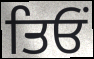
ਤਿਓਂ